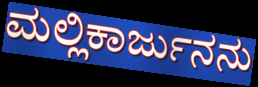
ಮಲ್ಲಿಕಾರ್ಜುನನು